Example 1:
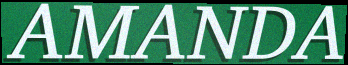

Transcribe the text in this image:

AMANDA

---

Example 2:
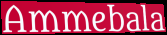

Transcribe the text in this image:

Ammebala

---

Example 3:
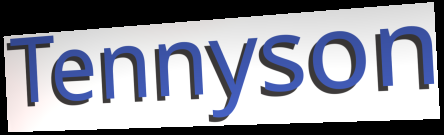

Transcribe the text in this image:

Tennyson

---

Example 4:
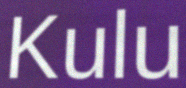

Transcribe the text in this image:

Kulu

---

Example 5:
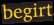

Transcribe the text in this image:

begirt